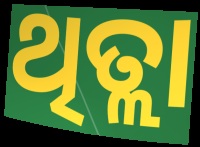
ଥିତ୍ଲା